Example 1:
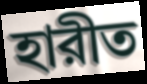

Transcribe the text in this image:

হারীত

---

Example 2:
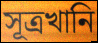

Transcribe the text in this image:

সূত্রখানি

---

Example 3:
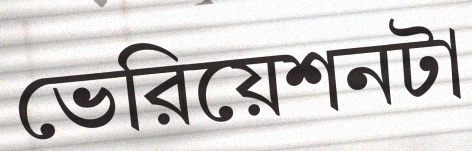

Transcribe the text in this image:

ভেরিয়েশনটা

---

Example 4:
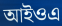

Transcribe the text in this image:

আইওএ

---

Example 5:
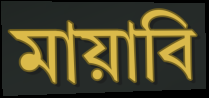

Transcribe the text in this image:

মায়াবি